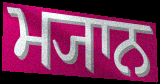
ਮ੍ਯਾਨ